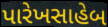
પારેખસાહેબ